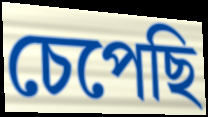
চেপেছি